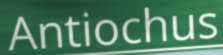
Antiochus